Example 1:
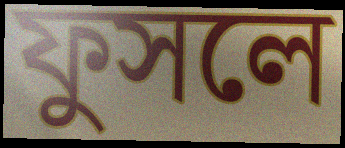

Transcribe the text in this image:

ফুসলে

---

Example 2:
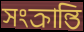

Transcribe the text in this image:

সংক্রান্তি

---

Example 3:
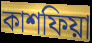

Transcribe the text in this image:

কাশফিয়া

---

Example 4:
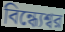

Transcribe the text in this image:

বিন্ধ্যেশ্বর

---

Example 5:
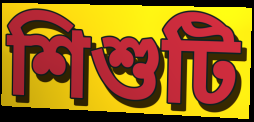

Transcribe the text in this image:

শিশুটি